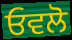
ਓਵਲੋ